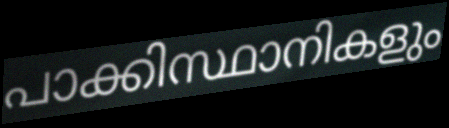
പാക്കിസ്ഥാനികളും